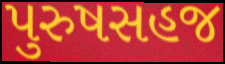
પુરુષસહજ